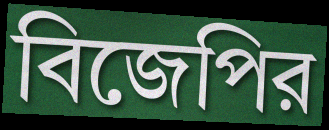
বিজেপির